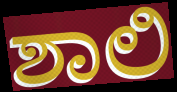
ಶಾಲಿ